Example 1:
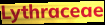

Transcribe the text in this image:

Lythraceae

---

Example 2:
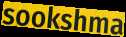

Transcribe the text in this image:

sookshma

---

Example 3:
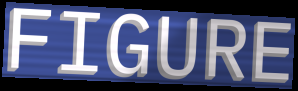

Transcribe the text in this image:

FIGURE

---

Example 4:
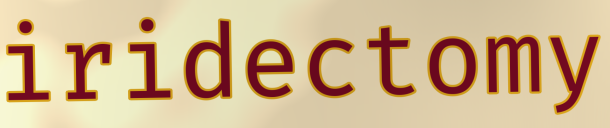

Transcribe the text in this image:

iridectomy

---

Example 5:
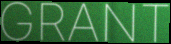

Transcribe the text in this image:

GRANT